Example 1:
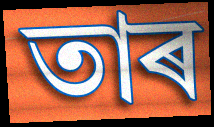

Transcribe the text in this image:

তাৰ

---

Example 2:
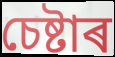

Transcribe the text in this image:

চেষ্টাৰ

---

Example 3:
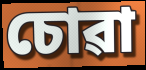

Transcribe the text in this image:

চোৱা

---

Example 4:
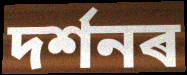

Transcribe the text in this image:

দৰ্শনৰ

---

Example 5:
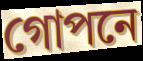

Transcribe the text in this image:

গোপনে